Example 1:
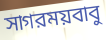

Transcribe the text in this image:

সাগরময়বাবু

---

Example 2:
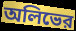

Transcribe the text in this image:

অলিভের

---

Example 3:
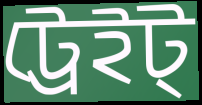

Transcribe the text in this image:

ট্রেইট্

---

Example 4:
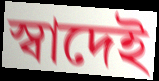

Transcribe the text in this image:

স্বাদেই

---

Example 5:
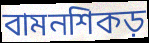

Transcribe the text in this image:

বামনশিকড়